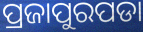
ପ୍ରଜାପୁରପଡା